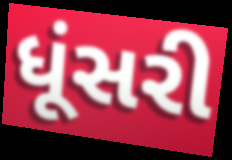
ધૂંસરી